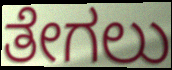
ತೇಗಲು